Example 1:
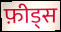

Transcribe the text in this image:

फ़ीड्स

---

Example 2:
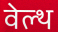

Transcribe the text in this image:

वेल्‍थ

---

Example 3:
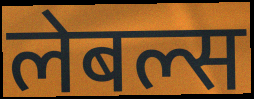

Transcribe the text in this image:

लेबल्स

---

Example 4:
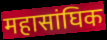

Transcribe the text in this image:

महासांघिक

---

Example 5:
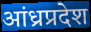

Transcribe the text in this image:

आंध्रप्रदेश